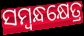
ସମ୍ବନ୍ଧକ୍ଷେତ୍ର